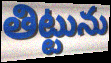
తిట్టును